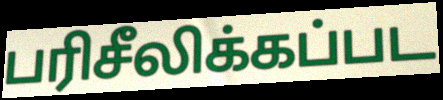
பரிசீலிக்கப்பட